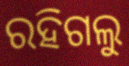
ରହିଗଲୁ